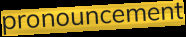
pronouncement